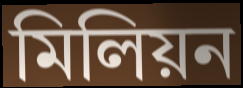
মিলিয়ন